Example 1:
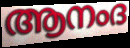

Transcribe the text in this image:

ആനംദ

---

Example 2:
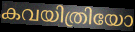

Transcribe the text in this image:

കവയിത്രിയോ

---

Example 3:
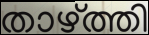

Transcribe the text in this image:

താഴ്ത്തി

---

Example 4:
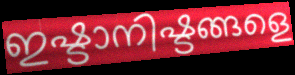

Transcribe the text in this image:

ഇഷ്ടാനിഷ്ടങ്ങളെ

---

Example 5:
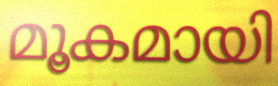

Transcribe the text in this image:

മൂകമായി